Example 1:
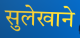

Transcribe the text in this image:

सुलेखाने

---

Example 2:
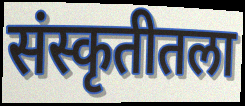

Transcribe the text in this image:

संस्कृतीतला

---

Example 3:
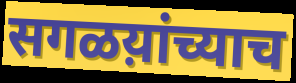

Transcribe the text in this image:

सगळय़ांच्याच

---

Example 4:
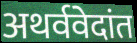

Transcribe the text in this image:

अथर्ववेदांत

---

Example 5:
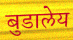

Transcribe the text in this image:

बुडालेय